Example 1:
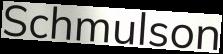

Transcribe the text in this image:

Schmulson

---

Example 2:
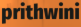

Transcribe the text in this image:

prithwini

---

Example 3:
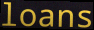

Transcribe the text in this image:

loans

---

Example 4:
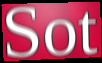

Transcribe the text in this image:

Sot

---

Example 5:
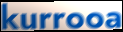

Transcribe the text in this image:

kurrooa